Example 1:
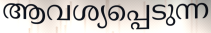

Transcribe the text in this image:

ആവശ്യപ്പെടുന്ന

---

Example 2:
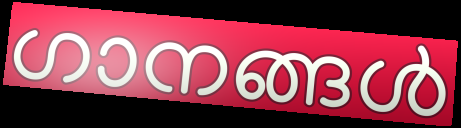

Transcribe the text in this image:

ഗാനങ്ങൾ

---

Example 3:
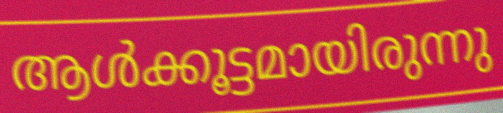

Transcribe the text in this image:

ആൾക്കൂട്ടമായിരുന്നു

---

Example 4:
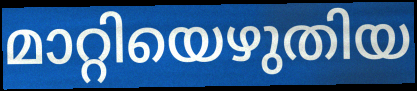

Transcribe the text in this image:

മാറ്റിയെഴുതിയ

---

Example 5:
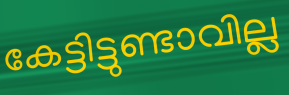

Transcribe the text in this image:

കേട്ടിട്ടുണ്ടാവില്ല